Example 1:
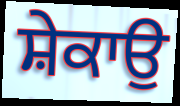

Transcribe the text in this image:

ਸ਼ੇਕਾਉ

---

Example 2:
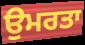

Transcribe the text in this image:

ਉਮਰਤਾ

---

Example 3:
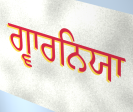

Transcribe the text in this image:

ਗ੍ਵਾਰਨਿਯਾ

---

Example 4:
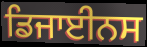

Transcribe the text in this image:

ਡਿਜਾਈਨਸ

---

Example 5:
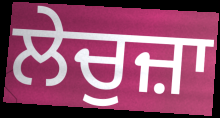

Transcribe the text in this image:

ਲੇਚੁਜ਼ਾ